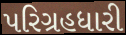
પરિગ્રહધારી